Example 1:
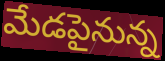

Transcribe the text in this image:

మేడపైనున్న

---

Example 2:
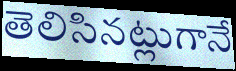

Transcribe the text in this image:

తెలిసినట్లుగానే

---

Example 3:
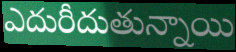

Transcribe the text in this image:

ఎదురీదుతున్నాయి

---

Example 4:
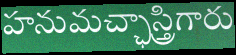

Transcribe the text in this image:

హనుమచ్ఛాస్త్రిగారు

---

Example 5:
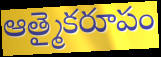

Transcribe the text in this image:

ఆత్మైకరూపం